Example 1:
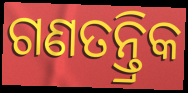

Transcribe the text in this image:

ଗଣତନ୍ତ୍ରିକ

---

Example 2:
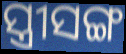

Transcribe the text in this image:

ସ୍ତ୍ରୀସଙ୍ଗ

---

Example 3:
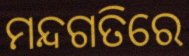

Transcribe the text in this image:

ମନ୍ଦଗତିରେ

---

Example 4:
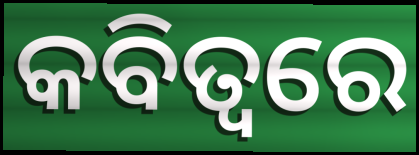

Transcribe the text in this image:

କବିତ୍ୱରେ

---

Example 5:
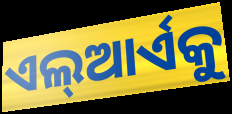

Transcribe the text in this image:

ଏଲ୍ଆର୍ଏକୁ